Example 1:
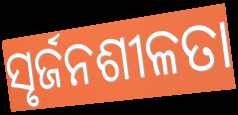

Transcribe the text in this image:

ସୃର୍ଜନଶୀଳତା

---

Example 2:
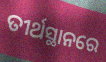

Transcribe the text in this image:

ତୀର୍ଥସ୍ଥାନରେ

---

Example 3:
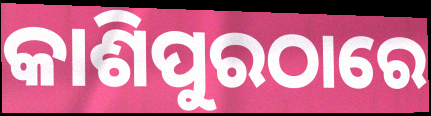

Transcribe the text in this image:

କାଶିପୁରଠାରେ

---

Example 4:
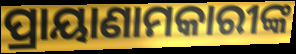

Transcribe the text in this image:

ପ୍ରାୟାଣାମକାରୀଙ୍କ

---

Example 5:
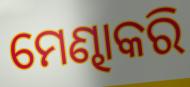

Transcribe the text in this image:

ମେଣ୍ଢାକରି